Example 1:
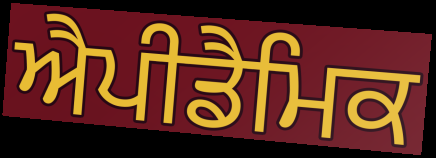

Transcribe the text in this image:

ਐਪੀਡੈਮਿਕ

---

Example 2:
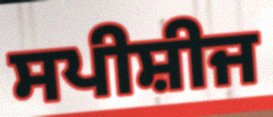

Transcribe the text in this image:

ਸਪੀਸ਼ੀਜ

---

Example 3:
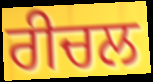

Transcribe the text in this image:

ਰੀਚਲ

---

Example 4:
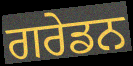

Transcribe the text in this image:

ਗਰੇਡਨ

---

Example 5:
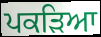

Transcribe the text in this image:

ਪਕੜਿਆ